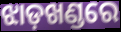
ଝାଡ଼ଖଣ୍ଡରେ